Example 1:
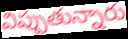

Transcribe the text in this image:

విప్పుతున్నారు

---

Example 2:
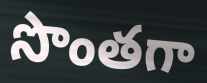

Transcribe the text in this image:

సొంతగా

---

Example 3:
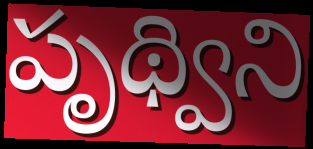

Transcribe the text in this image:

పృథ్విని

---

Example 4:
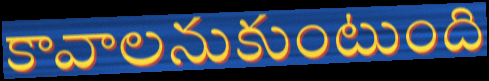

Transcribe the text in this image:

కావాలనుకుంటుంది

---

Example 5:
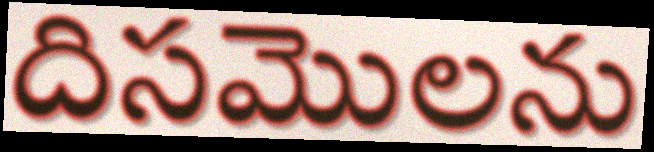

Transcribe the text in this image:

దిసమొలను